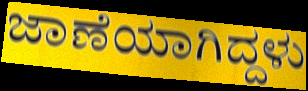
ಜಾಣೆಯಾಗಿದ್ದಳು